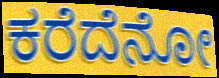
ಕರೆದೆನೋ